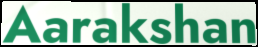
Aarakshan